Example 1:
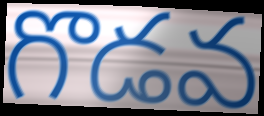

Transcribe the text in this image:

గొడవ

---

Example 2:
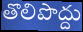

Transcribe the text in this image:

తొలిపొద్దు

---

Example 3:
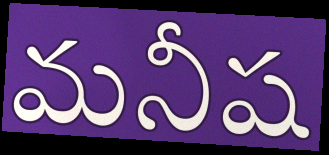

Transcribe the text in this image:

మనీష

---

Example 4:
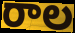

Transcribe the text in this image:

రాల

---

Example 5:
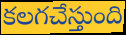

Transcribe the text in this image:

కలగచేస్తుంది